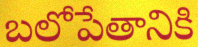
బలోపేతానికి